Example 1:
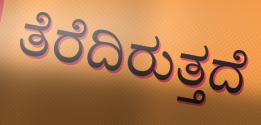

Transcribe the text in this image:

ತೆರೆದಿರುತ್ತದೆ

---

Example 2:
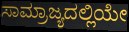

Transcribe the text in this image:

ಸಾಮ್ರಾಜ್ಯದಲ್ಲಿಯೇ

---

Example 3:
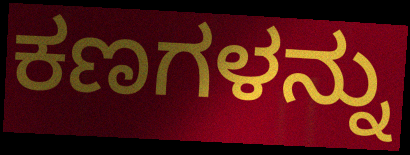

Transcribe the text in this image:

ಕಣಗಳನ್ನು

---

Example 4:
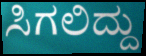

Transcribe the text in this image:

ಸಿಗಲಿದ್ದು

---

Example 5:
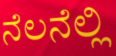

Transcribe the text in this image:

ನೆಲನೆಲ್ಲಿ